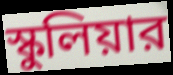
স্কুলিয়ার